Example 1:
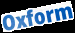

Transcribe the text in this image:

Oxform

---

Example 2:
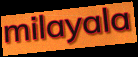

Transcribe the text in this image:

milayala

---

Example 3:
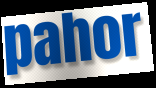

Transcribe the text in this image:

pahor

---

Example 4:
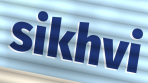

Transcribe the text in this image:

sikhvi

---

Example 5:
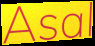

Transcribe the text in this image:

Asal